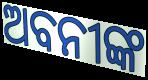
ଅବନୀଙ୍କ